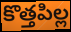
కొత్తపిల్ల